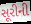
સૂરીની